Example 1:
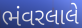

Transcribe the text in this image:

ભંવરલાલે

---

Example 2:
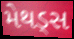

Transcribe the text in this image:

મેથડ્સ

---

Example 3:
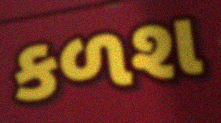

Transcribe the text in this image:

કળશ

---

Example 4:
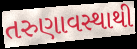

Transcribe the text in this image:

તરુણાવસ્થાથી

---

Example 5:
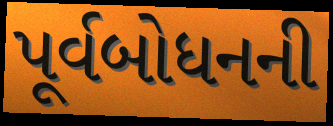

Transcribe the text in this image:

પૂર્વબોધનની